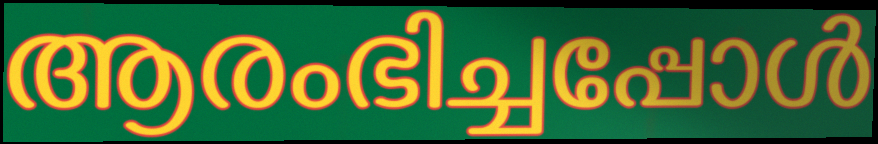
ആരംഭിച്ചപ്പോൾ